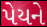
પેયને